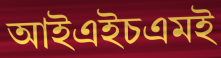
আইএইচএমই